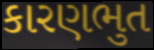
કારણભુત